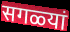
सगळ्यां